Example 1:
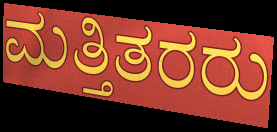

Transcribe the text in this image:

ಮತ್ತಿತರರು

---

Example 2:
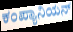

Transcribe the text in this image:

ಕಂಪ್ಯಾನಿಯನ್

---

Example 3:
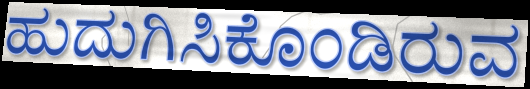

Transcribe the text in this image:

ಹುದುಗಿಸಿಕೊಂಡಿರುವ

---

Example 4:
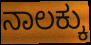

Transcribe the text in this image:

ನಾಲಕ್ಕು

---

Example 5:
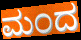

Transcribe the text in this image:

ಮಂದ